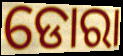
ଡୋରା